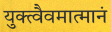
युक्त्वैवमात्मानं